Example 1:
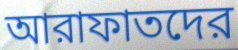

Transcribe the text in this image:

আরাফাতদের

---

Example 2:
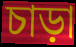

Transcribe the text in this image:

চাড়া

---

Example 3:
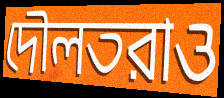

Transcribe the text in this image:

দৌলতরাও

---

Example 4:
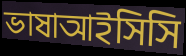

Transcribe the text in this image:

ভাষাআইসিসি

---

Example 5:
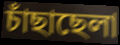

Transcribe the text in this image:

চাঁছাছেলা